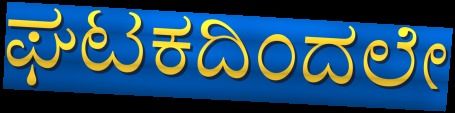
ಘಟಕದಿಂದಲೇ